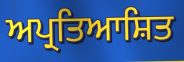
ਅਪ੍ਰਤਿਆਸ਼ਿਤ